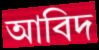
আবিদ